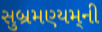
સુબ્રમણ્યમ્‌ની